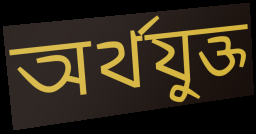
অৰ্থযুক্ত